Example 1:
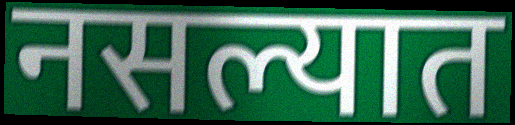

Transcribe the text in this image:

नसल्यात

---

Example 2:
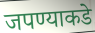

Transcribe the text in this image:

जपण्याकडे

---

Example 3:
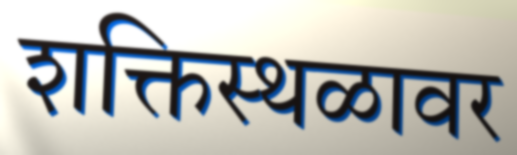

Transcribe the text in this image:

शक्तिस्थळावर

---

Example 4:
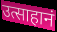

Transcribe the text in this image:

उत्साहानं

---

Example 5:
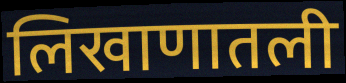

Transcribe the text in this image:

लिखाणातली